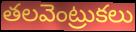
తలవెంట్రుకలు